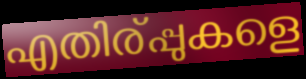
എതിര്പ്പുകളെ